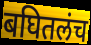
बघितलंच